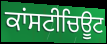
ਕਾਂਸਟੀਚਿਊਟ